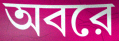
অবরে